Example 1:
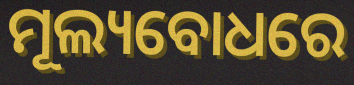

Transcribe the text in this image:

ମୂଲ୍ୟବୋଧରେ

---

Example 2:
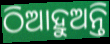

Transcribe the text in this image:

ଠିଆହୁଅନ୍ତି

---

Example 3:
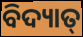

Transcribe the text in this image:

ବିଦ୍ୟାତ୍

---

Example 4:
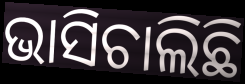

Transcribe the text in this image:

ଭାସିଚାଲିଛି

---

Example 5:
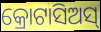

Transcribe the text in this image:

କ୍ରୋଟାସିଅସ୍